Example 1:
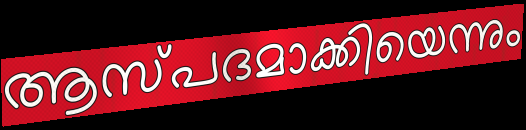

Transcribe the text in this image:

ആസ്പദമാക്കിയെന്നും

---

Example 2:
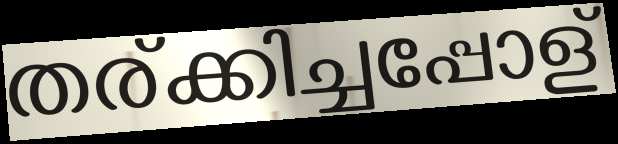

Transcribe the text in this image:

തര്ക്കിച്ചപ്പോള്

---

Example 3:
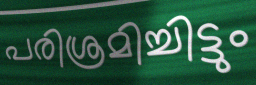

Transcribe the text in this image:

പരിശ്രമിച്ചിട്ടും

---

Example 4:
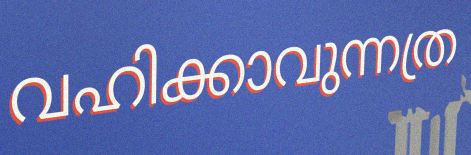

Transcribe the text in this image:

വഹിക്കാവുന്നത്ര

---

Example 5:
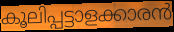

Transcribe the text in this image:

കൂലിപ്പട്ടാളക്കാരൻ